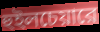
হুইলচেয়ারে